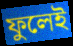
ফুলেই